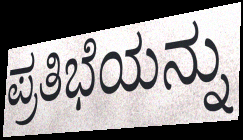
ಪ್ರತಿಭೆಯನ್ನು